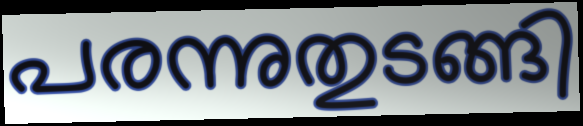
പരന്നുതുടങ്ങി